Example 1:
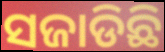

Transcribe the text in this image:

ସଜାଡିଛି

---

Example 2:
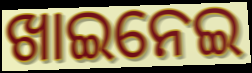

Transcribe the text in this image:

ଖାଇନେଇ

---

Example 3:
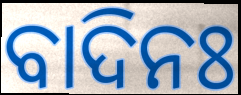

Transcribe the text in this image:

ବାଦିନଃ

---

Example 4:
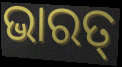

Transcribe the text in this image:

ଭାରତ୍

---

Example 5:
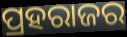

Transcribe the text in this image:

ପ୍ରହରାଜର